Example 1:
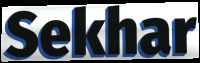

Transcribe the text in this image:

Sekhar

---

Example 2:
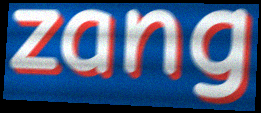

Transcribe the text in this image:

zang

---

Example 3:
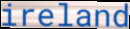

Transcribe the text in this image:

ireland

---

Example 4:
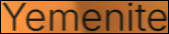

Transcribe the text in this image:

Yemenite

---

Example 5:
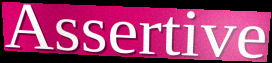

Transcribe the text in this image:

Assertive